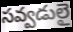
సవ్వడులై